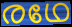
രഥേ